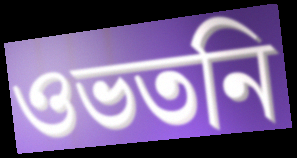
ওভতনি